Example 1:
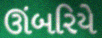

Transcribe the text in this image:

ઊંબરિયે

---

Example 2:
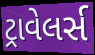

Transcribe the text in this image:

ટ્રાવેલર્સ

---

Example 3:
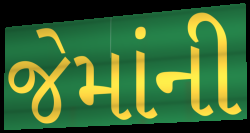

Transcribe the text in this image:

જેમાંની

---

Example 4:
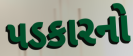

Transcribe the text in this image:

પડકારનો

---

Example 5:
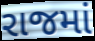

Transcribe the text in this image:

રાજમાં